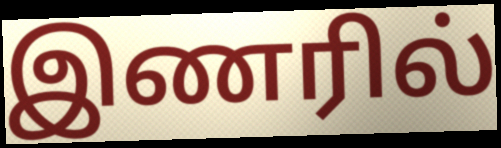
இணரில்